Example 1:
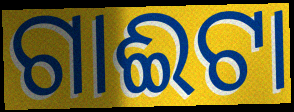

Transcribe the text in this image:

ଗାଈଟା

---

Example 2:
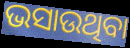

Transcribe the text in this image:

ଭସାଉଥିବା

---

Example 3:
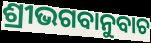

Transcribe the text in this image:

ଶ୍ରୀଭଗବାନୁବାଚ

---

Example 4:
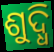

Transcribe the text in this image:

ଶୁଦ୍ଧି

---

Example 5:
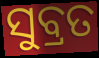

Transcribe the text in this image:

ସୁବ୍ରତ